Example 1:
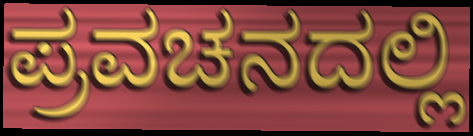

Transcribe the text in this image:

ಪ್ರವಚನದಲ್ಲಿ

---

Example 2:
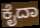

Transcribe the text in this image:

ಕೈದಾ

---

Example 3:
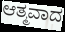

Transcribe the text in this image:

ಆತ್ಮವಾದ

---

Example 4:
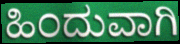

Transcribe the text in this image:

ಹಿಂದುವಾಗಿ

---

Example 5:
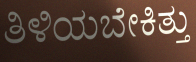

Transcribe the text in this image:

ತಿಳಿಯಬೇಕಿತ್ತು